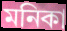
মনিকা